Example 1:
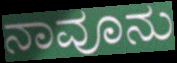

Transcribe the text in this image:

ನಾವೂನು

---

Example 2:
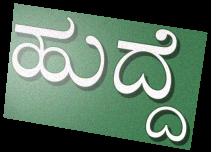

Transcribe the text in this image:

ಹುದ್ದೆ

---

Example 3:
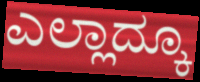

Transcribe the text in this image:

ಎಲ್ಲಾದ್ಕೂ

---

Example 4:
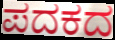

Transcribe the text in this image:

ಪದಕದ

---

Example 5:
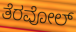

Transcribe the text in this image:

ತೆರವೋಲ್